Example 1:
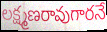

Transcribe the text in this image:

లక్ష్మణరావుగారనే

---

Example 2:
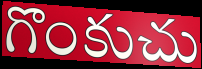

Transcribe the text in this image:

గొంకుచు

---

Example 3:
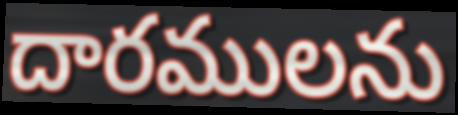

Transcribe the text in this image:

దారములను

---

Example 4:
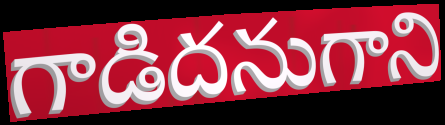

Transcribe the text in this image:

గాడిదనుగాని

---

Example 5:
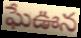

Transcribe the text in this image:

ఘేఊన